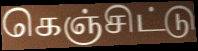
கெஞ்சிட்டு